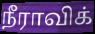
நீராவிக்